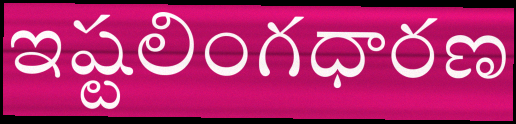
ఇష్టలింగధారణ